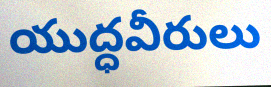
యుద్ధవీరులు